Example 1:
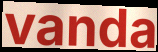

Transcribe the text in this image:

vanda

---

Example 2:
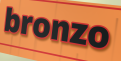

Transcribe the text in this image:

bronzo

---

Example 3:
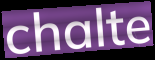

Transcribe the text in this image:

chalte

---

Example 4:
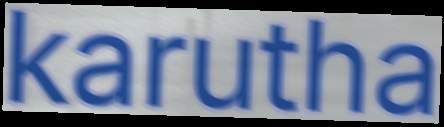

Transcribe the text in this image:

karutha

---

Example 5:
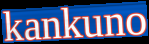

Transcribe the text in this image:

kankuno